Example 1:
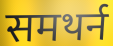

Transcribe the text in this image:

समथर्न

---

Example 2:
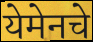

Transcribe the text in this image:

येमेनचे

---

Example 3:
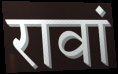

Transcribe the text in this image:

रावां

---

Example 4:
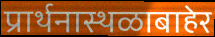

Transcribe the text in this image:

प्रार्थनास्थळाबाहेर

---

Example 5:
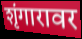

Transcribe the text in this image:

शृंगारावर